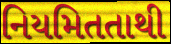
નિયમિતતાથી